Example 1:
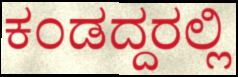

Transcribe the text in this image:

ಕಂಡದ್ದರಲ್ಲಿ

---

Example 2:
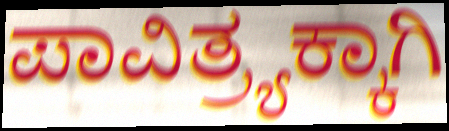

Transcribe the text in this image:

ಪಾವಿತ್ರ್ಯಕ್ಕಾಗಿ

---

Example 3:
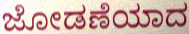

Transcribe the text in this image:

ಜೋಡಣೆಯಾದ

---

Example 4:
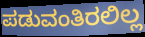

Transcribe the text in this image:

ಪಡುವಂತಿರಲಿಲ್ಲ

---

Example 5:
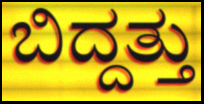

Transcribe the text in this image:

ಬಿದ್ದತ್ತು